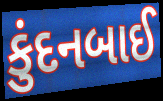
કુંદનબાઈ